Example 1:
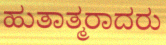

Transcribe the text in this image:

ಹುತಾತ್ಮರಾದರು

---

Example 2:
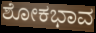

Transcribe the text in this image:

ಶೋಕಭಾವ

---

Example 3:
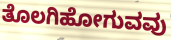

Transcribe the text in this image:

ತೊಲಗಿಹೋಗುವವು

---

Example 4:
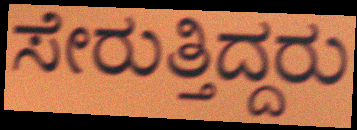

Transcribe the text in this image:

ಸೇರುತ್ತಿದ್ದರು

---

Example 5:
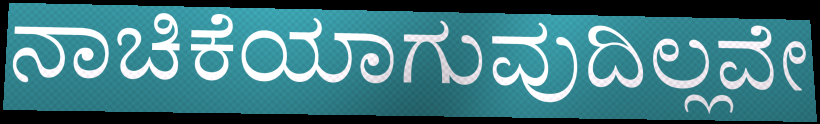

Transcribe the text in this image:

ನಾಚಿಕೆಯಾಗುವುದಿಲ್ಲವೇ